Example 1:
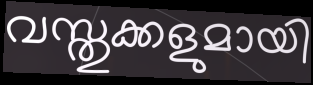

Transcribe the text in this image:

വസ്തുക്കളുമായി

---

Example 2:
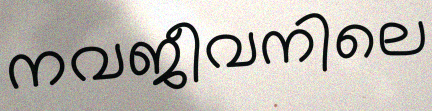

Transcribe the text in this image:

നവജീവനിലെ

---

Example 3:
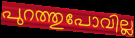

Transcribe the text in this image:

പുറത്തുപോവില്ല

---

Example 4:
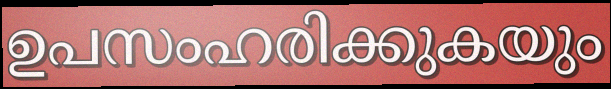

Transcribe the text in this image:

ഉപസംഹരിക്കുകയും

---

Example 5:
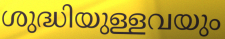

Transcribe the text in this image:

ശുദ്ധിയുള്ളവയും